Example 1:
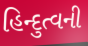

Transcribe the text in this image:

હિન્દુત્વની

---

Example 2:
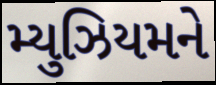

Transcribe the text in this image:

મ્યુઝિયમને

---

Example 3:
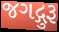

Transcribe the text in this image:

જગદ્ગુરૂ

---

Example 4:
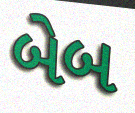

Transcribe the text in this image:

બેબ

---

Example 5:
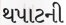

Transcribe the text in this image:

થપાટની